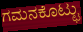
ಗಮನಕೊಟ್ಟು